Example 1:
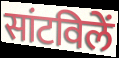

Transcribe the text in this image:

सांटविलें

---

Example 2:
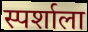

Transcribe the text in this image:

स्पर्शाला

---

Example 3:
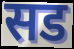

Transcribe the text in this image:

सड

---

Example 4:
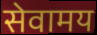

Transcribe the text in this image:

सेवामय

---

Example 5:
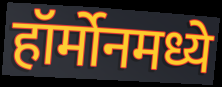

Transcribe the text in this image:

हॉर्मोनमध्ये